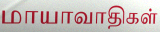
மாயாவாதிகள்